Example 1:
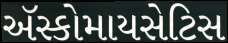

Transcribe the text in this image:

ઍસ્કોમાયસેટિસ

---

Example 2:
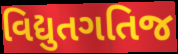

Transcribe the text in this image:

વિદ્યુતગતિજ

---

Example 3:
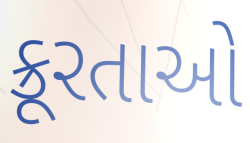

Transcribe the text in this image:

ક્રૂરતાઓ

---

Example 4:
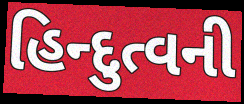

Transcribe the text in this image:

હિન્દુત્વની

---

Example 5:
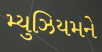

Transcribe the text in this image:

મ્યુઝિયમને